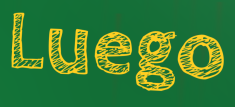
Luego